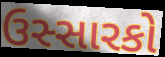
ઉસ્સારકો